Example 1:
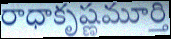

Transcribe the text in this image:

రాధాకృష్ణమూర్తి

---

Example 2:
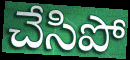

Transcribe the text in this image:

చేసిపో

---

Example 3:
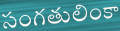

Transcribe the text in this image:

సంగతులింకా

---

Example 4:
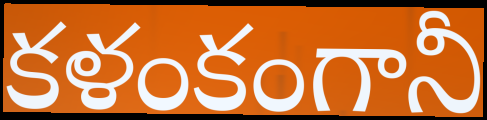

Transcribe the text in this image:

కళంకంగానీ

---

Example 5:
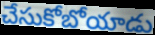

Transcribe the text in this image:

చేసుకోబోయాడు